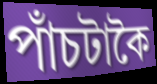
পাঁচটাকৈ